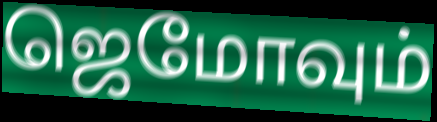
ஜெமோவும்